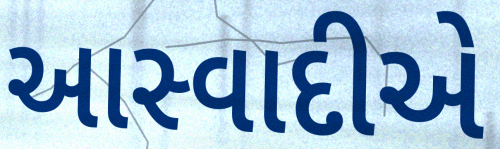
આસ્વાદીએ